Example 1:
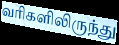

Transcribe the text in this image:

வரிகளிலிருந்து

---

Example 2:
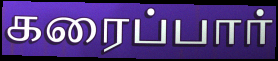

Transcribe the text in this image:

கரைப்பார்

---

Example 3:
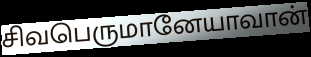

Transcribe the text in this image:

சிவபெருமானேயாவான்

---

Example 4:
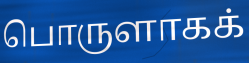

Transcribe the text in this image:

பொருளாகக்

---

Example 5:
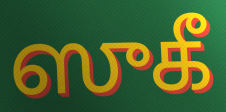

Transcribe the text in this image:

ஸுகீ